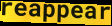
reappear